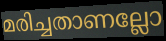
മരിച്ചതാണല്ലോ